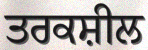
ਤਰਕਸ਼ੀਲ